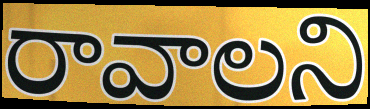
రావాలని